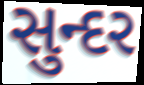
સુન્દર